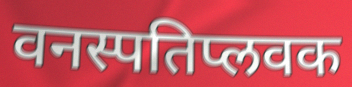
वनस्पतिप्लवक